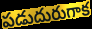
పడుదురుగాక